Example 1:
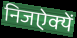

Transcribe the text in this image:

निजऐक्यें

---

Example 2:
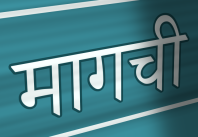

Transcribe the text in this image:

मागची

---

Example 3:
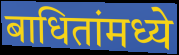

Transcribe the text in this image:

बाधितांमध्ये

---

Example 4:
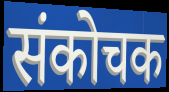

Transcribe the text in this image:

संकोचक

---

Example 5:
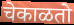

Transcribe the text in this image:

चेकाळतो